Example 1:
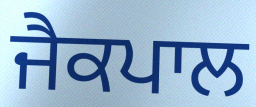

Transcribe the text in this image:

ਜੈਕਪਾਲ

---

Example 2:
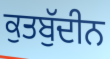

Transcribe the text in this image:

ਕੁਤਬੁੱਦੀਨ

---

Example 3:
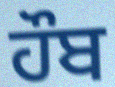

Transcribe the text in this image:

ਹੌਬ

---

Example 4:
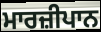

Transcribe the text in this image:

ਮਾਰਜ਼ੀਪਾਨ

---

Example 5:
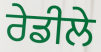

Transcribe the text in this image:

ਰੇਡੀਲੇ